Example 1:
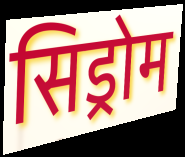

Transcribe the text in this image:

सिड्रोम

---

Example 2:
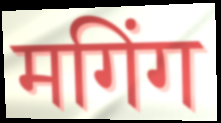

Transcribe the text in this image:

मगिंग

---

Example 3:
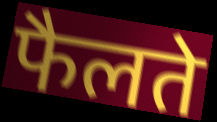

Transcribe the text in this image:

फैलते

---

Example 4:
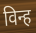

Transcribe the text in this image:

विन्ह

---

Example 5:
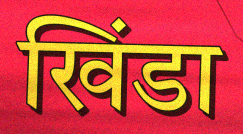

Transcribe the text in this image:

खिंडा